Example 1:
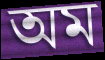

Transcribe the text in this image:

অম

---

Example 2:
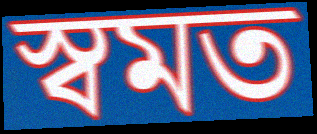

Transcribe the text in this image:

স্বমত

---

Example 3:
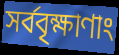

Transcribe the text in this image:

সর্ববৃক্ষাণাং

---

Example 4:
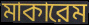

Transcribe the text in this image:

মাকারেম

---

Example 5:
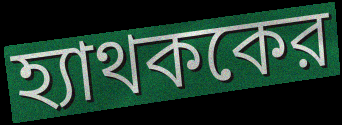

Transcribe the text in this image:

হ্যাথককের